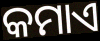
କମାଏ